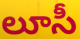
లూసీ